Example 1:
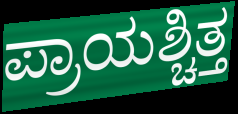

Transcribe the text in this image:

ಪ್ರಾಯಶ್ಚಿತ್ತ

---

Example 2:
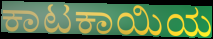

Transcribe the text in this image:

ಕಾಟಕಾಯಿಯ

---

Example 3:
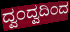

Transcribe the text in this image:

ದ್ವಂದ್ವದಿಂದ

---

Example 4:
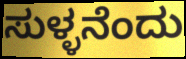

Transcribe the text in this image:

ಸುಳ್ಳನೆಂದು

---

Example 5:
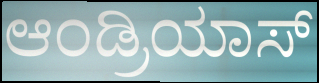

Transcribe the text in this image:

ಆಂಡ್ರಿಯಾಸ್